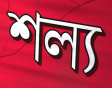
শল্য